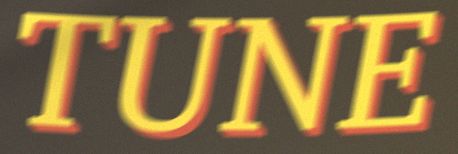
TUNE